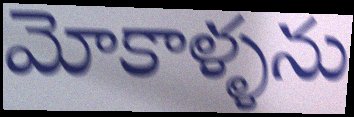
మోకాళ్ళను